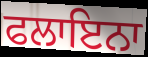
ਫਲਾਇਨਾ